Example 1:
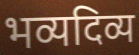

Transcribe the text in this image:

भव्यदिव्य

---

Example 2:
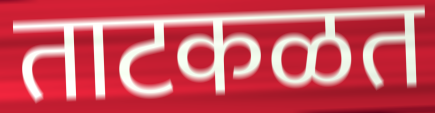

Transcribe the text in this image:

ताटकळत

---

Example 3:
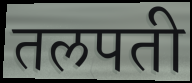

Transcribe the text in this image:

तलपती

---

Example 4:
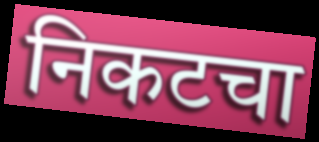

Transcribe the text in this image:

निकटचा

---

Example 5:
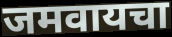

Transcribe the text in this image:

जमवायचा